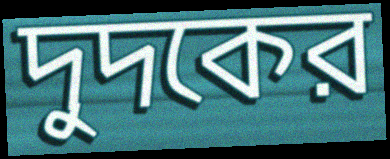
দুদকের